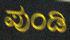
ಪುಂಡಿ